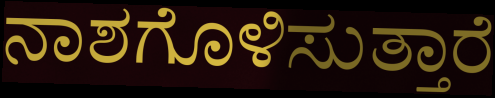
ನಾಶಗೊಳಿಸುತ್ತಾರೆ